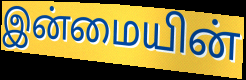
இன்மையின்